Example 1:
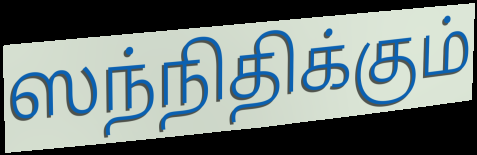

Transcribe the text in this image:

ஸந்நிதிக்கும்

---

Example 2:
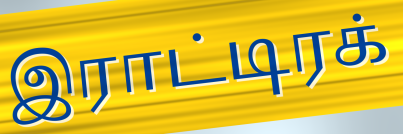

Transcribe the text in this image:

இராட்டிரக்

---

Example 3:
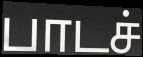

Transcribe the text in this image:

பாடச்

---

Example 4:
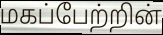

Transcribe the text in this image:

மகப்பேற்றின்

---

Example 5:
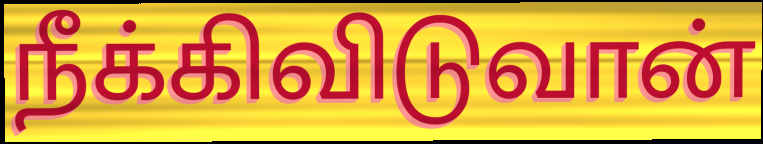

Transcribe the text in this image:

நீக்கிவிடுவான்